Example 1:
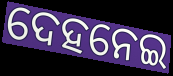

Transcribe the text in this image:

ଦେହନେଇ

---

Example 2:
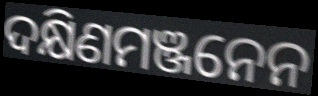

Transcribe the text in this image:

ଦକ୍ଷିଣମଞ୍ଜନେନ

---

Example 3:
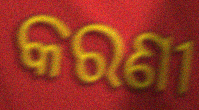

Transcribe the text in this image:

କରଣୀ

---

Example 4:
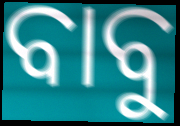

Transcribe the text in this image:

ବାବୁ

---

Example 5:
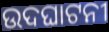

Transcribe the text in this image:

ଉଦଘାଟନୀ